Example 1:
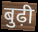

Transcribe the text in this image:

बुढ़ी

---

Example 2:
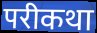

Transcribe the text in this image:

परीकथा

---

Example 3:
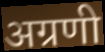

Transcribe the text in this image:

अग्रणी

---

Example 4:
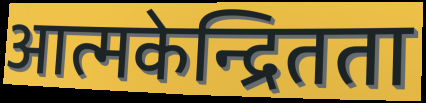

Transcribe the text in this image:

आत्मकेन्द्रितता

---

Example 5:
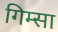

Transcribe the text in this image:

गिम्सा